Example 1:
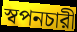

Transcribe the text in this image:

স্বপনচারী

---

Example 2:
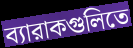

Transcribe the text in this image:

ব্যারাকগুলিতে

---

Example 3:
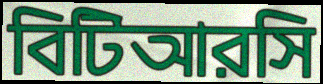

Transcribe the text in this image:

বিটিআরসি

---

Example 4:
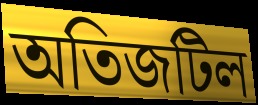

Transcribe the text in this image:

অতিজটিল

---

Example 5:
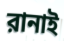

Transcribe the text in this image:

রানাই